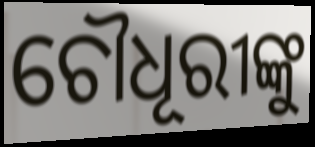
ଚୌଧୂରୀଙ୍କୁ